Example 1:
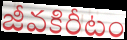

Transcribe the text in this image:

జీవకిరీటం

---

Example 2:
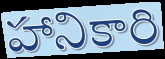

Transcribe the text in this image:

హానికారి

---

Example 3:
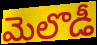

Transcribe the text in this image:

మెలొడీ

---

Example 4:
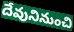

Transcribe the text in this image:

దేవునినుంచి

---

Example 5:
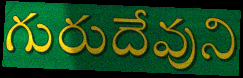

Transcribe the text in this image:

గురుదేవుని